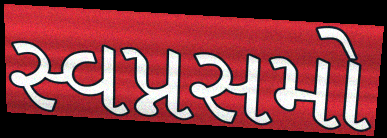
સ્વપ્નસમો